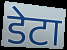
डेटा